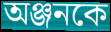
অঞ্জনকে